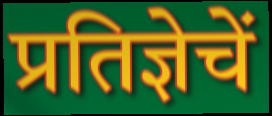
प्रतिज्ञेचें